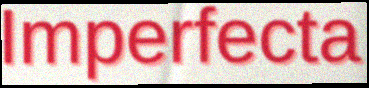
Imperfecta